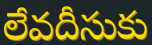
లేవదీసుకు